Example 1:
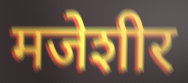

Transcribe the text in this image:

मजेशीर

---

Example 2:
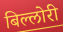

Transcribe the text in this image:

बिल्लोरी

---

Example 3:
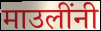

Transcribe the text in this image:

माउलींनी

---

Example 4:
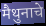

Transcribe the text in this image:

मैथुनाचे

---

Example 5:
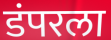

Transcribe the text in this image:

डंपरला